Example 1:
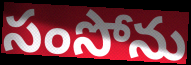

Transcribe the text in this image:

సంసోను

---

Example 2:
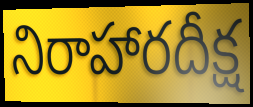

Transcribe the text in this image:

నిరాహారదీక్ష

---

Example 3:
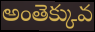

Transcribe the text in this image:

అంతెక్కువ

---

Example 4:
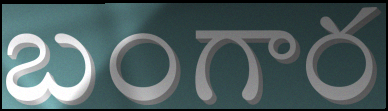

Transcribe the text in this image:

బంగార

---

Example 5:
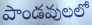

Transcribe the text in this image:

పాండవులలో